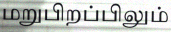
மறுபிறப்பிலும்